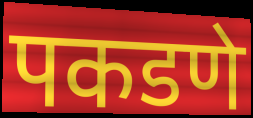
पकडणे